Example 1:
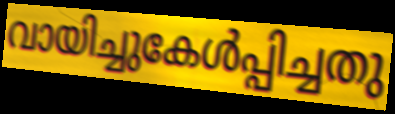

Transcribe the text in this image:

വായിച്ചുകേൾപ്പിച്ചതു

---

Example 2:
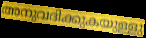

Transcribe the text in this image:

അനുവദിക്കുകയുള്ളു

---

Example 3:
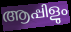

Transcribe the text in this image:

ആപ്പിളും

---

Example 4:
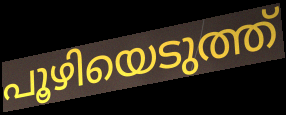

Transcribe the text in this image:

പൂഴിയെടുത്ത്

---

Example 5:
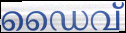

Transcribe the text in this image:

ഡൈവ്